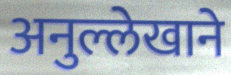
अनुल्लेखाने